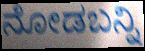
ನೋಡಬನ್ನಿ